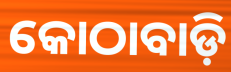
କୋଠାବାଡ଼ି